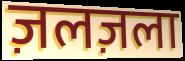
ज़लज़ला